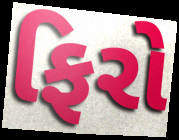
ફિરો